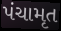
પંચામૃત